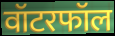
वॉटरफॉल